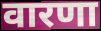
वारणा